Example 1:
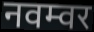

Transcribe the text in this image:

नवम्वर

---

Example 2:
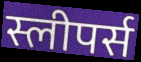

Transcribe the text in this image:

स्लीपर्स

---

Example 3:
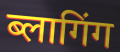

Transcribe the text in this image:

ब्लागिंग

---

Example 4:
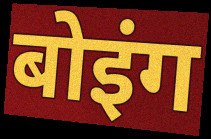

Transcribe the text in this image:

बोइंग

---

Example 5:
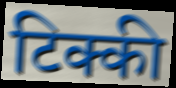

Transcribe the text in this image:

टिक्की